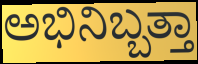
ಅಭಿನಿಬ್ಬತ್ತಾ